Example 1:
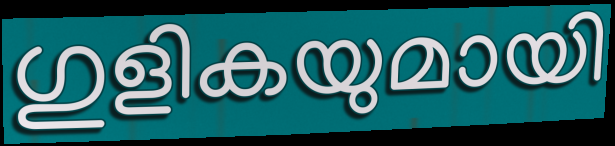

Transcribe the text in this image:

ഗുളികയുമായി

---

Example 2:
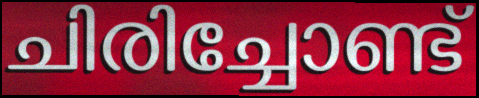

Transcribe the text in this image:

ചിരിച്ചോണ്ട്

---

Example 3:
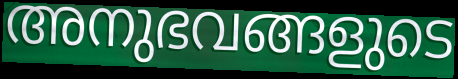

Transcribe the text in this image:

അനുഭവങ്ങളുടെ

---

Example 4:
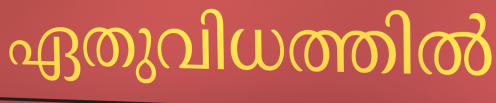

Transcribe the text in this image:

ഏതുവിധത്തിൽ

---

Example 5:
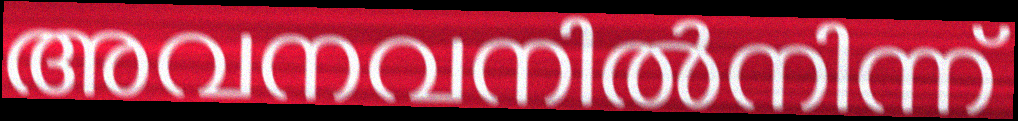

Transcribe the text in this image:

അവനവനിൽനിന്ന്